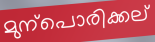
മുന്പൊരിക്കല്